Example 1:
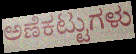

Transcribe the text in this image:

ಅಣೆಕಟ್ಟುಗಳು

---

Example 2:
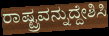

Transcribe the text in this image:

ರಾಷ್ಟ್ರವನ್ನುದ್ದೇಶಿಸಿ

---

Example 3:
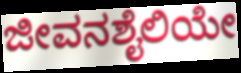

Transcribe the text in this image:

ಜೀವನಶೈಲಿಯೇ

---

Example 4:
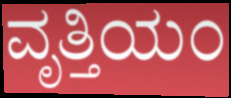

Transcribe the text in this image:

ವೃತ್ತಿಯಂ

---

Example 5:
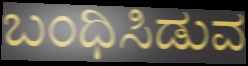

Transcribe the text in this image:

ಬಂಧಿಸಿಡುವ